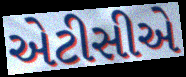
એટીસીએ